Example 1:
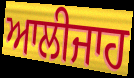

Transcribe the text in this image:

ਆਲੀਜਾਹ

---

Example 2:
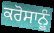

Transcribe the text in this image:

ਕਰੋਸਾਨੂੰ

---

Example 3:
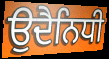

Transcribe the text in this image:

ਉਦੈਨਿਧੀ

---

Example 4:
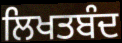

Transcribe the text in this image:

ਲਿਖਤਬੰਦ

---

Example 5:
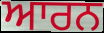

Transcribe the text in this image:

ਆਰਨ